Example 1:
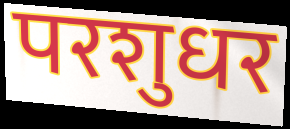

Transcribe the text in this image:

परशुधर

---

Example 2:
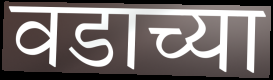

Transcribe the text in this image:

वडाच्या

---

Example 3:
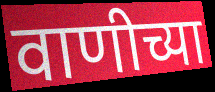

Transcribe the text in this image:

वाणीच्या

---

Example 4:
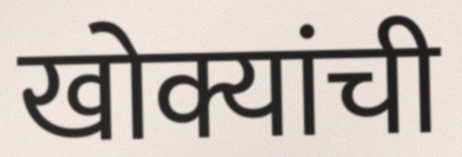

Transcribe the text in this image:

खोक्यांची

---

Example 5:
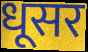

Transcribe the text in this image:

धूसर